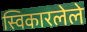
स्विकारलेले